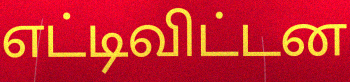
எட்டிவிட்டன